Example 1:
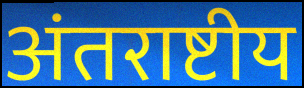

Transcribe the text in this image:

अंतराष्टीय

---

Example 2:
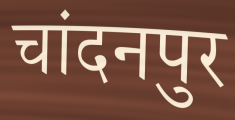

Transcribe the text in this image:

चांदनपुर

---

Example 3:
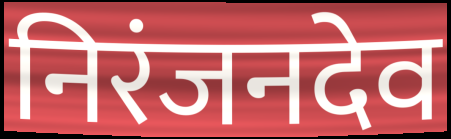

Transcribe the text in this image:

निरंजनदेव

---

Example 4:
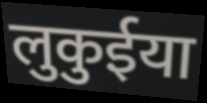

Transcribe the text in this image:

लुकुईया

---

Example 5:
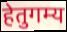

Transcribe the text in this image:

हेतुगम्य